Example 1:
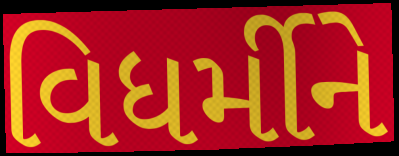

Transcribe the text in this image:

વિધર્મીને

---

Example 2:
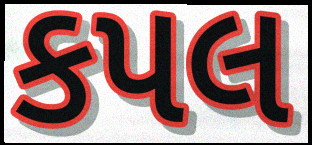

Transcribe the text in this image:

કપલ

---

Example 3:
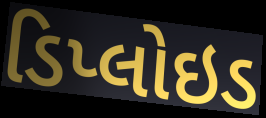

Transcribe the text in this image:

ડિપ્લોઇડ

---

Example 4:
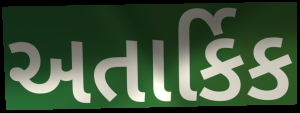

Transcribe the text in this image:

અતાર્કિક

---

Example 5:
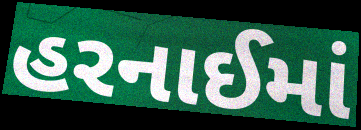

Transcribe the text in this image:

હરનાઈમાં